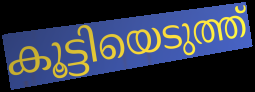
കൂട്ടിയെടുത്ത്